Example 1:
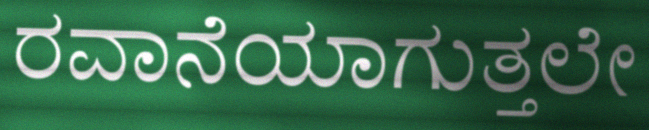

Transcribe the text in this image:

ರವಾನೆಯಾಗುತ್ತಲೇ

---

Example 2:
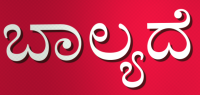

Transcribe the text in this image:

ಬಾಲ್ಯದೆ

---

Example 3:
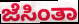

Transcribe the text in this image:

ಜೆಸಿಂತಾ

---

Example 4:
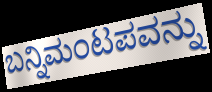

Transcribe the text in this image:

ಬನ್ನಿಮಂಟಪವನ್ನು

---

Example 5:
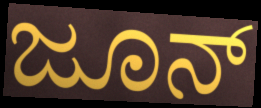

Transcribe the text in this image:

ಜೂನ್